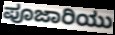
ಪೂಜಾರಿಯು